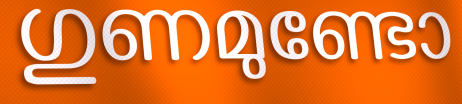
ഗുണമുണ്ടോ